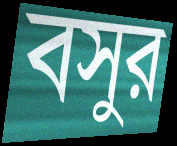
বসুর